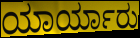
ಯಾರ್ಯಾರು